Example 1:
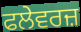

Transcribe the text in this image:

ਫਲੇਵਰਜ਼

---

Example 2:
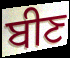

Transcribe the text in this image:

ਬੀਣ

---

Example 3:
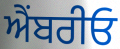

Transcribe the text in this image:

ਐਂਬਰੀਓ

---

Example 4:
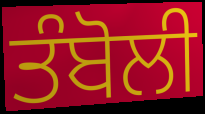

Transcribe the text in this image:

ਤੰਬੋਲੀ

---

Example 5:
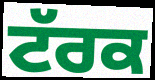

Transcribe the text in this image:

ਟੱਰਕ